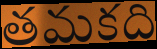
తమకది